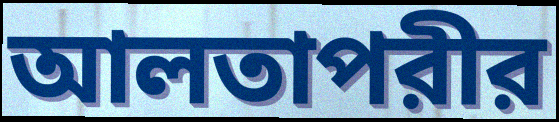
আলতাপরীর